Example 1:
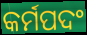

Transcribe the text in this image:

କର୍ମପଦଂ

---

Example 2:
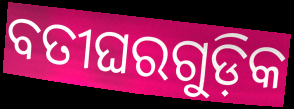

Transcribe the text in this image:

ବତୀଘରଗୁଡ଼ିକ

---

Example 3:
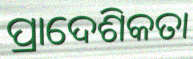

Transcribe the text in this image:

ପ୍ରାଦେଶିକତା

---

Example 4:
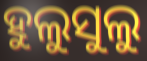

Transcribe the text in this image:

ହୁଲୁସୁଲୁ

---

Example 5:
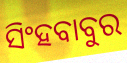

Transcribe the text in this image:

ସିଂହବାବୁର